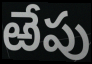
ఱేపు